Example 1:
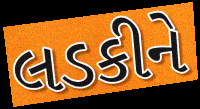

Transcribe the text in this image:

લડકીને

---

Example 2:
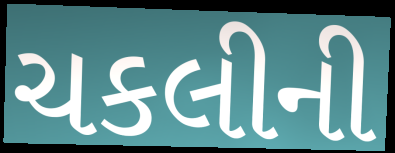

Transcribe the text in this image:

ચકલીની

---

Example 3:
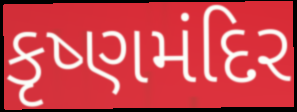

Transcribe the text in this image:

કૃષ્ણમંદિર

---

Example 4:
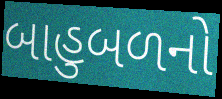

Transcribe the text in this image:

બાહુબળનો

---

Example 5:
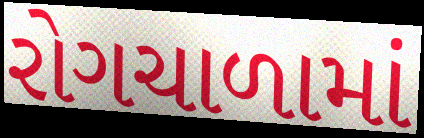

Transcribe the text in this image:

રોગચાળામાં